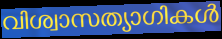
വിശ്വാസത്യാഗികൾ